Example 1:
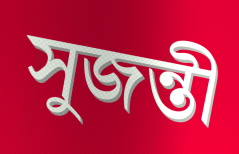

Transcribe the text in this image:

সুজন্তী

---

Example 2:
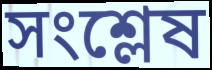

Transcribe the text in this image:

সংশ্লেষ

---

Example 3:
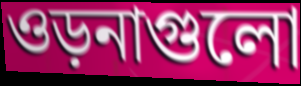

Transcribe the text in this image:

ওড়নাগুলো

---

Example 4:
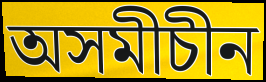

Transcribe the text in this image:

অসমীচীন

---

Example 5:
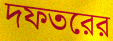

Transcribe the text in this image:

দফতরের